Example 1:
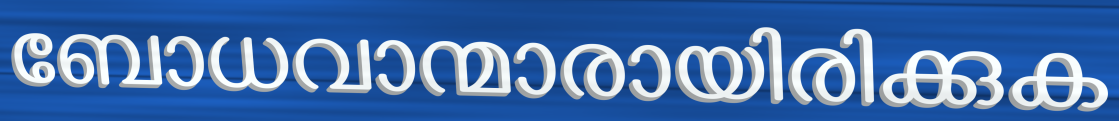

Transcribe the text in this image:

ബോധവാന്മാരായിരിക്കുക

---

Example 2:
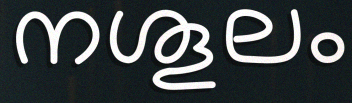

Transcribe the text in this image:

നശൂലം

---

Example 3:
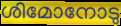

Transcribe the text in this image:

ശിമോനോടു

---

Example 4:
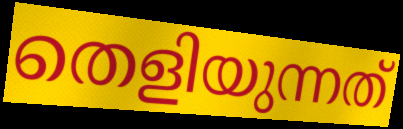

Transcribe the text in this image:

തെളിയുന്നത്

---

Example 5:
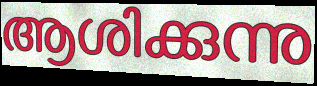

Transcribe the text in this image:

ആശിക്കുന്നു